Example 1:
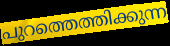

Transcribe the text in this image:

പുറത്തെത്തിക്കുന്ന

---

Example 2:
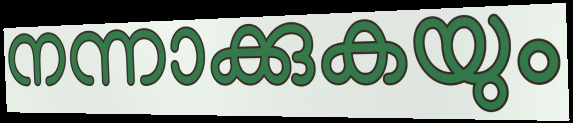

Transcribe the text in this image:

നന്നാക്കുകയും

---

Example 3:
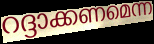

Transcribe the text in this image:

റദ്ദാക്കണമെന്ന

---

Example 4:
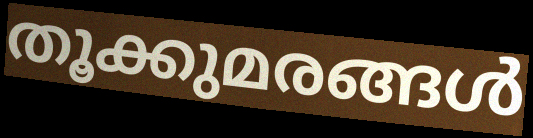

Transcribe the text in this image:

തൂക്കുമരങ്ങൾ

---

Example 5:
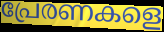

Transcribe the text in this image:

പ്രേരണകളെ